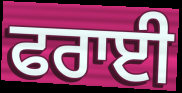
ਫਰਾਈ